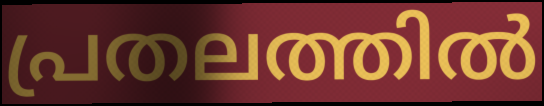
പ്രതലത്തിൽ